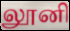
லூனி